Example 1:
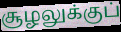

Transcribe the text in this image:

சூழலுக்குப்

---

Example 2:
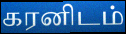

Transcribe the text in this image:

கரனிடம்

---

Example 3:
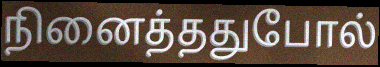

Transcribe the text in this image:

நினைத்ததுபோல்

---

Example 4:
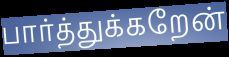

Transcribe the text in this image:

பார்த்துக்கறேன்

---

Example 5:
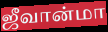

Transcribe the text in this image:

ஜீவான்மா